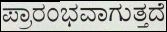
ಪ್ರಾರಂಭವಾಗುತ್ತದೆ